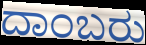
ದಾಂಬರು